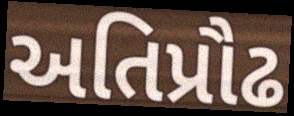
અતિપ્રૌઢ